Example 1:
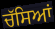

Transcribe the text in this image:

ਚੱਸਿਆਂ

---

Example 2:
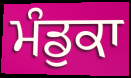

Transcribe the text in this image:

ਮੰਡੁਕਾ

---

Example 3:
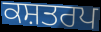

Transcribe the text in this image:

ਕਸ਼ਤਰਪ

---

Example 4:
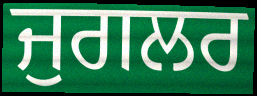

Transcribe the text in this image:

ਜੁਗਲਰ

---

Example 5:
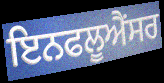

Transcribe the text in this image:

ਇਨਫਲੂਐਂਸਰ